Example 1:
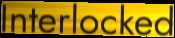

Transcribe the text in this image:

Interlocked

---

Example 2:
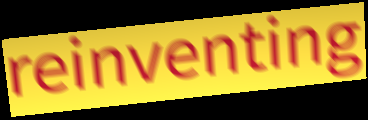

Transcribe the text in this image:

reinventing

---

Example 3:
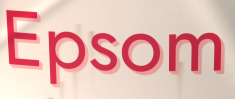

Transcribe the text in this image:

Epsom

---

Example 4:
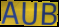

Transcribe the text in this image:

AUB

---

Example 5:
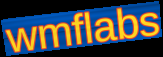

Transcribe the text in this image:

wmflabs